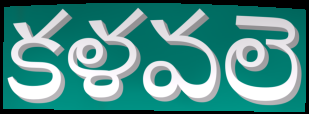
కళవలె